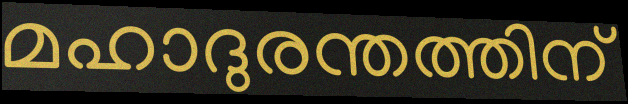
മഹാദുരന്തത്തിന്